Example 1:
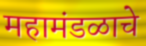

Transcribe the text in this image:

महामंडळाचे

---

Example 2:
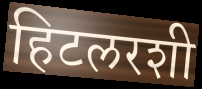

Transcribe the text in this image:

हिटलरशी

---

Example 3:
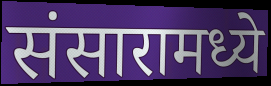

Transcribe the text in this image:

संसारामध्ये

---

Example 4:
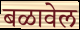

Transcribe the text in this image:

बळावेल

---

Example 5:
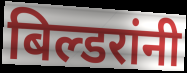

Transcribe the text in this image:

बिल्डरांनी